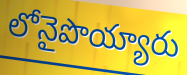
లోనైపొయ్యారు